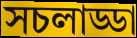
সচলাড্ডা